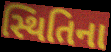
સ્થિતિના